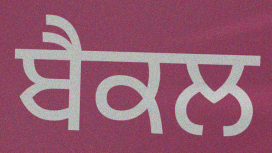
ਬੈਕਲ